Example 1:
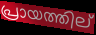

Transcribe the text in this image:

പ്രായത്തില്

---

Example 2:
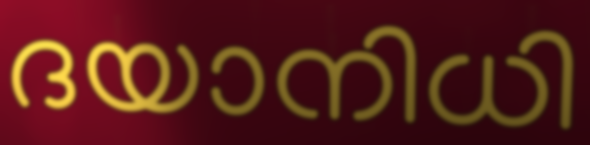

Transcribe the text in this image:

ദയാനിധി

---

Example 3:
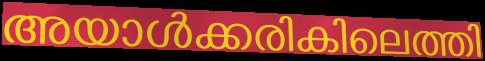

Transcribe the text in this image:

അയാൾക്കരികിലെത്തി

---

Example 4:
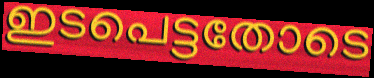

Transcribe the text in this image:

ഇടപെട്ടതോടെ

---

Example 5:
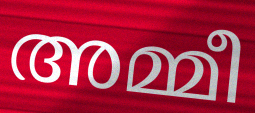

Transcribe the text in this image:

അമ്മീ